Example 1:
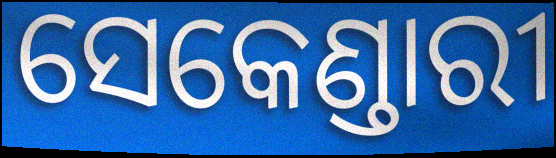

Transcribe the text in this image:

ସେକେଣ୍ଡାରୀ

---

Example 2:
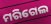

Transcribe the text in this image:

ମରିଗେଲ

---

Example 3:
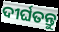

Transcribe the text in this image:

ଦୀର୍ଘତନ୍ତୁ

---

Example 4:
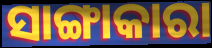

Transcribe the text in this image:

ସାଙ୍ଗାକାରା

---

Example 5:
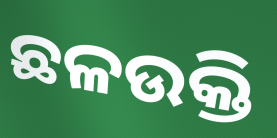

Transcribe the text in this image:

ଛଳଉକ୍ତି